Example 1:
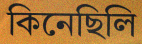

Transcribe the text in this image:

কিনেছিলি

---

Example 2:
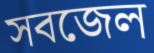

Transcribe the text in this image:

সবজেল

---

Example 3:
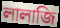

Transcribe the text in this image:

লালাজি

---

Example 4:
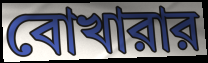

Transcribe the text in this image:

বোখারার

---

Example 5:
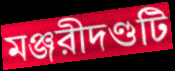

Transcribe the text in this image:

মঞ্জরীদণ্ডটি